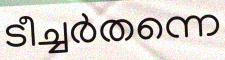
ടീച്ചർതന്നെ